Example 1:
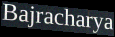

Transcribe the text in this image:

Bajracharya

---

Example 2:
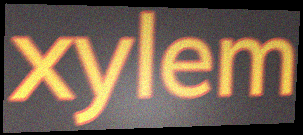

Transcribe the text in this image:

xylem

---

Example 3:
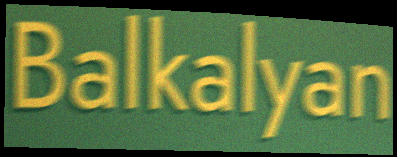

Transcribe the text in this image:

Balkalyan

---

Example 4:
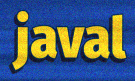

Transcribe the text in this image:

javal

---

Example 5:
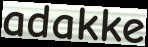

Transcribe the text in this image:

adakke